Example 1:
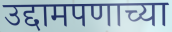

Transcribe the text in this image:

उद्दामपणाच्या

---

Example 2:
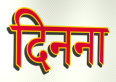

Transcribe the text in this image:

दिनना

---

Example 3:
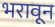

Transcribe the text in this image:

भरावून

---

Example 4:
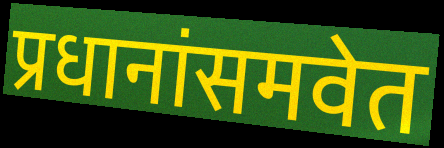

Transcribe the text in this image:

प्रधानांसमवेत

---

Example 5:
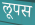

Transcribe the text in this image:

लूपस